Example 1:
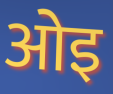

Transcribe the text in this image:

ओइ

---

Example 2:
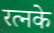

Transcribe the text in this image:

रत्नके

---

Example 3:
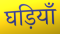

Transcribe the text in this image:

घड़ियाँ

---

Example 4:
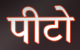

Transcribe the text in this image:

पीटो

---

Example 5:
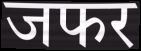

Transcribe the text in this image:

जफर